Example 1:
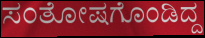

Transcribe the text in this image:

ಸಂತೋಷಗೊಂಡಿದ್ದ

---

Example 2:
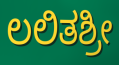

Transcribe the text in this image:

ಲಲಿತಶ್ರೀ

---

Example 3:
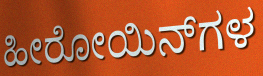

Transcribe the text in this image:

ಹೀರೋಯಿನ್‌ಗಳ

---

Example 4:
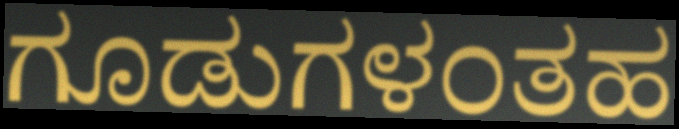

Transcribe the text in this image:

ಗೂಡುಗಳಂತಹ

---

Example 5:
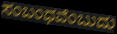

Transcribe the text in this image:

ಸಂಬಂಧವೆಂಬುದು